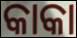
କାକା